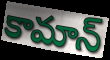
కామాన్